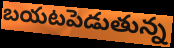
బయటపెడుతున్న